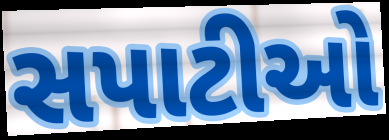
સપાટીઓ